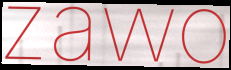
zawo